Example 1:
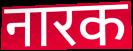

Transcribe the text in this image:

नारक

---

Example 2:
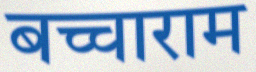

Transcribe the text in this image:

बच्चाराम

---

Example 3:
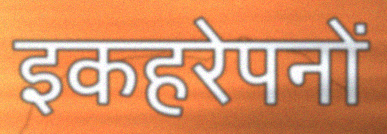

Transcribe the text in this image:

इकहरेपनों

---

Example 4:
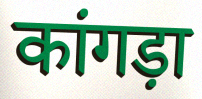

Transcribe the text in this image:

कांगड़ा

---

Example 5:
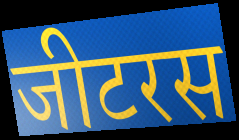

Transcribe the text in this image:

जीटरस